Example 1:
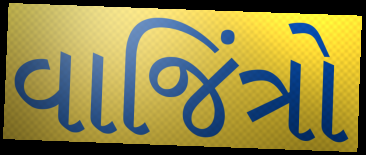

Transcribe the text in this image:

વાજિંત્રો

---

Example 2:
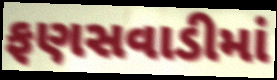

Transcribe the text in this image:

ફણસવાડીમાં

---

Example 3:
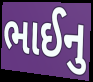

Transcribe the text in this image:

ભાઈનુ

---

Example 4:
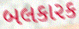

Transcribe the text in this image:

બલકારક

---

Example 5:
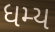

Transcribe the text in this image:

ધમ્ય